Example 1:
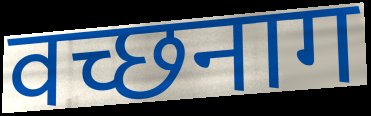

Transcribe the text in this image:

वच्छनाग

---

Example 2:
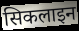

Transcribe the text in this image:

सिकलाइन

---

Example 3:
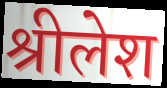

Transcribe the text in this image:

श्रीलेश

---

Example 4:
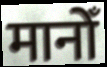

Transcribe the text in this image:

मानोँ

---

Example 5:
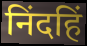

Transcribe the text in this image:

निंदहिं